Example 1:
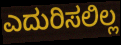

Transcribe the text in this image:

ಎದುರಿಸಲಿಲ್ಲ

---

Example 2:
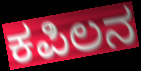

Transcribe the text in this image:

ಕಪಿಲನ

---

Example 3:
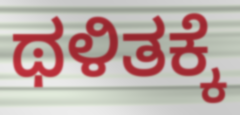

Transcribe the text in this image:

ಥಳಿತಕ್ಕೆ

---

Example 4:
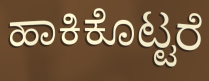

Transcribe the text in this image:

ಹಾಕಿಕೊಟ್ಟರೆ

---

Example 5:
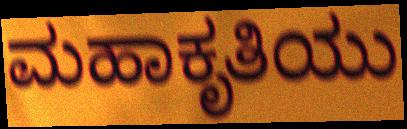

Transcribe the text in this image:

ಮಹಾಕೃತಿಯು